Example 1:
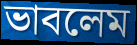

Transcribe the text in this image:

ভাবলেম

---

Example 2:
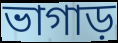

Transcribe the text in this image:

ভাগাড়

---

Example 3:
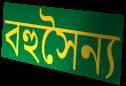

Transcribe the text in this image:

বহুসৈন্য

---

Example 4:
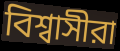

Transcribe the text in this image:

বিশ্বাসীরা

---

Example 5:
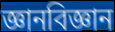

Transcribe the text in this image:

জ্ঞানবিজ্ঞান